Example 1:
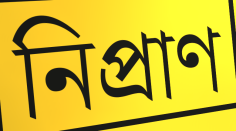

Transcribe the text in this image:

নিপ্রাণ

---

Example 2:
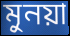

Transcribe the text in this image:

মুনয়া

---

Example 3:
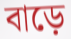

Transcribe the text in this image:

বাড়ে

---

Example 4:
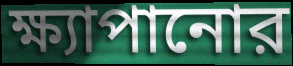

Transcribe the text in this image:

ক্ষ্যাপানোর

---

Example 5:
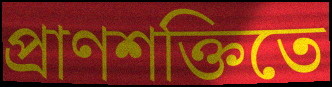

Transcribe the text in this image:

প্রাণশক্তিতে